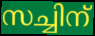
സച്ചിന്